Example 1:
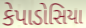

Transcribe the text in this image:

કેપાડોસિયા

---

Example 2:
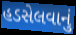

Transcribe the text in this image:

હડસેલવાનું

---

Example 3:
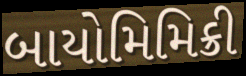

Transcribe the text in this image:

બાયોમિમિક્રી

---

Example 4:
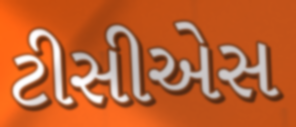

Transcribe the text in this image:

ટીસીએસ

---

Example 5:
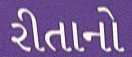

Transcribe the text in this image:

રીતાનો